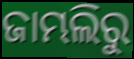
ଜାମ୍ଭଲିରୁ